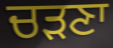
ਚੜਣਾ